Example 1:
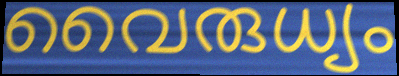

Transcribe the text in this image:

വൈരുധ്യം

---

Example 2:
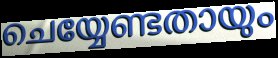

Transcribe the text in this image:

ചെയ്യേണ്ടതായും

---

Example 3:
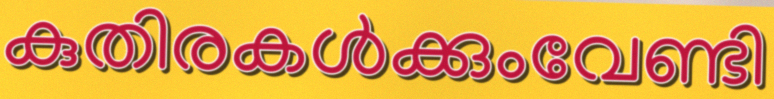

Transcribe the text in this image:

കുതിരകൾക്കുംവേണ്ടി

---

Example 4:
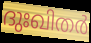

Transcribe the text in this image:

ദുഃഖിതർ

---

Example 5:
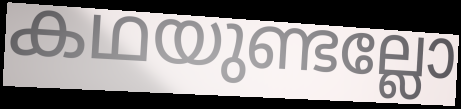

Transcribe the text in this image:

കഥയുണ്ടല്ലോ